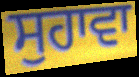
ਸੁਹਾਵਾ